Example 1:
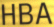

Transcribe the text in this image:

HBA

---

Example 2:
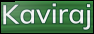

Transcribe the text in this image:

Kaviraj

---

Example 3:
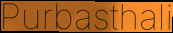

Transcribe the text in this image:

Purbasthali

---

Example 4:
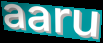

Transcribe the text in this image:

aaru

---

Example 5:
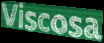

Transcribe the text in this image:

Viscosa